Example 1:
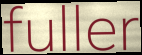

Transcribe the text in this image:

fuller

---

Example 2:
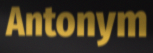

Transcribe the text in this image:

Antonym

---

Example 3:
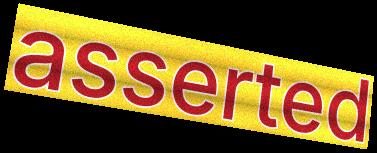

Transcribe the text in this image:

asserted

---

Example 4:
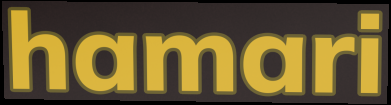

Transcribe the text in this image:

hamari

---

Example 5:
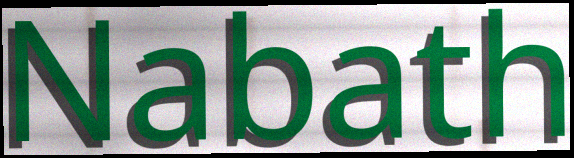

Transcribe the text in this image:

Nabath